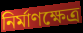
নির্মাণক্ষেত্র